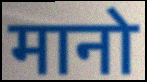
मानो